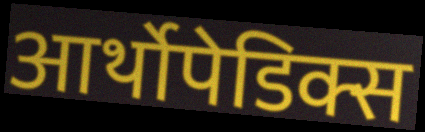
आर्थोपेडिक्स